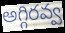
అగ్గిరవ్వ